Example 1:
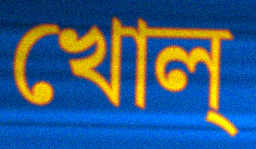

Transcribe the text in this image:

খোল্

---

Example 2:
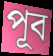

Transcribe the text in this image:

পূব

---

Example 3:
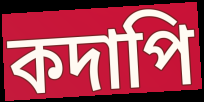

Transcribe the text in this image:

কদাপি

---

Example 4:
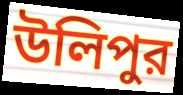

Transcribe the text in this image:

উলিপুর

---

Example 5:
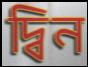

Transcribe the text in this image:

দ্বিন